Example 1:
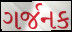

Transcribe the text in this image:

ગર્જનક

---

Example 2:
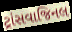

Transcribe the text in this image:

ટ્રાંસવાજિનલ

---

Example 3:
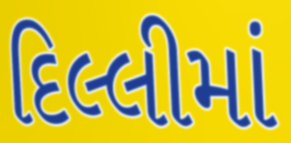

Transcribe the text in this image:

દિલ્લીમાં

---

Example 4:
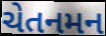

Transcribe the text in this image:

ચેતનમન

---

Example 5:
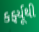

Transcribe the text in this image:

કર્ફ્યૂથી